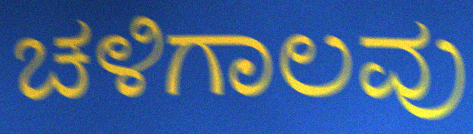
ಚಳಿಗಾಲವು